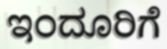
ಇಂದೂರಿಗೆ